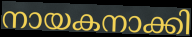
നായകനാക്കി